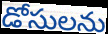
డోసులను